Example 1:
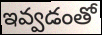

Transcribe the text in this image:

ఇవ్వడంతో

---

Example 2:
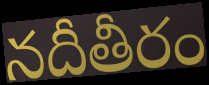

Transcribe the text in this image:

నదీతీరం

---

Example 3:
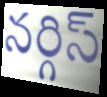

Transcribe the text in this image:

నర్గిస్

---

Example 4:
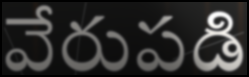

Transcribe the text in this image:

వేరుపడి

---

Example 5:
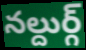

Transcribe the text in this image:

నల్దుర్గ్